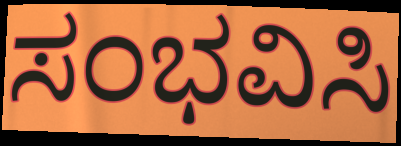
ಸಂಭವಿಸಿ